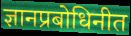
ज्ञानप्रबोधिनीत